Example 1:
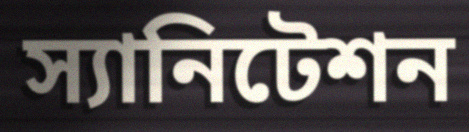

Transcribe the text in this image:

স্যানিটেশন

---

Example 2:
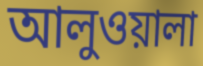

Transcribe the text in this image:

আলুওয়ালা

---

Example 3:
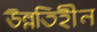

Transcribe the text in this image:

উন্নতিহীন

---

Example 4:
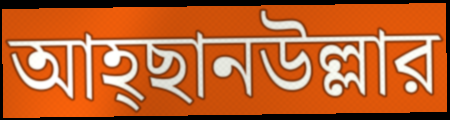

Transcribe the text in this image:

আহ্ছানউল্লার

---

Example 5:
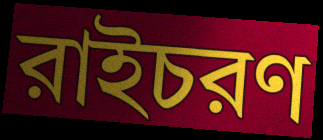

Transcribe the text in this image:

রাইচরণ